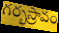
గర్భస్రావం